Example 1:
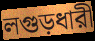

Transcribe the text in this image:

লগুড়ধারী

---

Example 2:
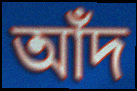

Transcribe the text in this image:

আঁদ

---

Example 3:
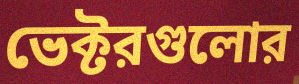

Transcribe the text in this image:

ভেক্টরগুলোর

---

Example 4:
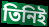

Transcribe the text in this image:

তিনিই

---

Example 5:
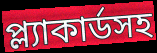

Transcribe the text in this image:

প্ল্যাকার্ডসহ